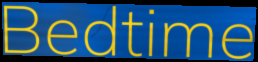
Bedtime